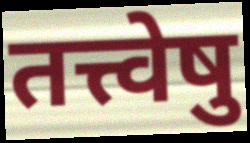
तत्त्वेषु